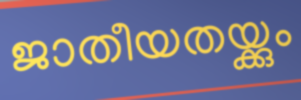
ജാതീയതയ്ക്കും